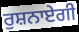
ਰੁਸ਼ਨਾਏਗੀ